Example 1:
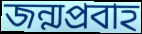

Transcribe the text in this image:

জন্মপ্রবাহ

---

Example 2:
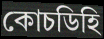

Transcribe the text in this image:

কোচডিহি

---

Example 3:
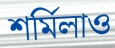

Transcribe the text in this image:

শর্মিলাও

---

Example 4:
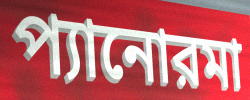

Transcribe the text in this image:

প্যানোরমা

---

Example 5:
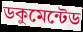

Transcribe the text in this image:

ডকুমেন্টেড